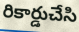
రికార్డుచేసి